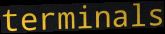
terminals